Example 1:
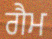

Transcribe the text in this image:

ਗੈਮ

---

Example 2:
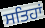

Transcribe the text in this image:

ਸਤਿਹਾਂ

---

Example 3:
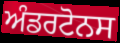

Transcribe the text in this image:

ਅੰਡਰਟੋਨਸ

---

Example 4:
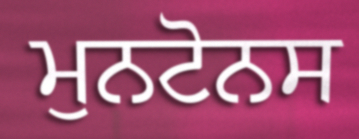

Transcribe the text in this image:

ਮੁਨਟੋਨਸ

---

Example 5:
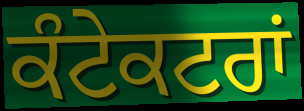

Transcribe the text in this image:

ਕੰਟੇਕਟਰਾਂ